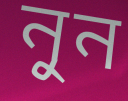
নুন